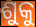
ଶୁକୁ